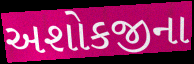
અશોકજીના